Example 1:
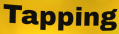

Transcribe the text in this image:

Tapping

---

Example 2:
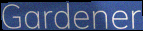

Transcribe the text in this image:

Gardener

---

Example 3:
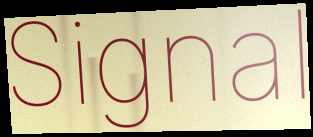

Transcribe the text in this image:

Signal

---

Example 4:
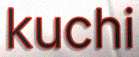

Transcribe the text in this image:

kuchi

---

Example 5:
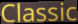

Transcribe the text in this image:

Classic